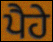
ਪੈਹੇ